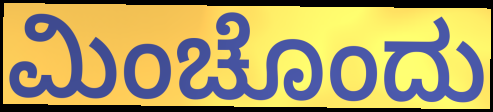
ಮಿಂಚೊಂದು